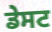
ਡੇਸਟ